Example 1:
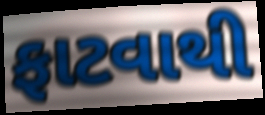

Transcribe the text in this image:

ફાટવાથી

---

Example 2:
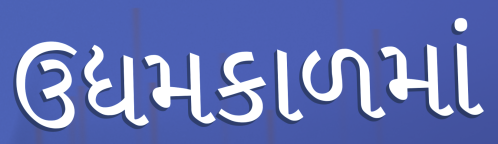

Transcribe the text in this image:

ઉદ્યમકાળમાં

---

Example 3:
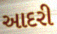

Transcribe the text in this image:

આદરી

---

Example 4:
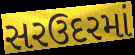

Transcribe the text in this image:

સરઉદરમાં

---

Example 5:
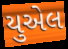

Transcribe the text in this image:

યુએલ